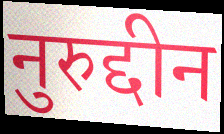
नुरुद्दीन